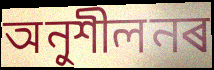
অনুশীলনৰ